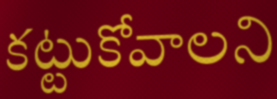
కట్టుకోవాలని